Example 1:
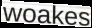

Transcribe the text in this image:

woakes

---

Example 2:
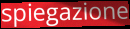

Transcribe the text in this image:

spiegazione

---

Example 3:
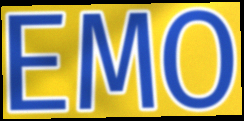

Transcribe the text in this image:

EMO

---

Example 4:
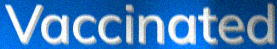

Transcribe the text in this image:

Vaccinated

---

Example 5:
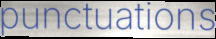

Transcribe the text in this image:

punctuations